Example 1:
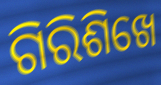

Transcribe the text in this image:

ଗିରିଶିଖେ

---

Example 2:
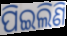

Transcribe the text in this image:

ପିଇଲିଣି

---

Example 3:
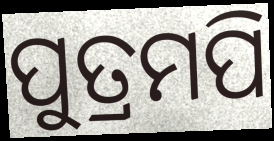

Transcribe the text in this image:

ପୁତ୍ରମପି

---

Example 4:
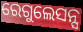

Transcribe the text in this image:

ରେଗୁଲେସନ୍ସ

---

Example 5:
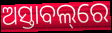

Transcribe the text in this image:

ଅସ୍ତାବଲ୍‌ରେ